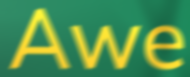
Awe